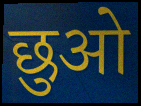
छुओ